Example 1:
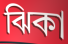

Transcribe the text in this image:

ঝিকা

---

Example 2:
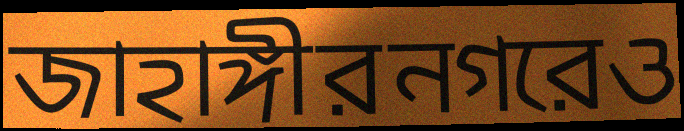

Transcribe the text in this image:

জাহাঙ্গীরনগরেও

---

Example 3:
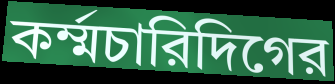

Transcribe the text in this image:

কর্ম্মচারিদিগের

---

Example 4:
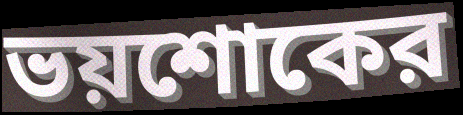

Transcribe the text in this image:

ভয়শোকের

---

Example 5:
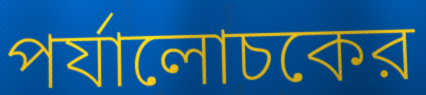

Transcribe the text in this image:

পর্যালোচকের